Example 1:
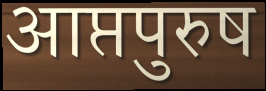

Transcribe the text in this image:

आप्तपुरुष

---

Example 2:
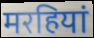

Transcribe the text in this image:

मरहियां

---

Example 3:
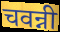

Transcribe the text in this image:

चवन्नी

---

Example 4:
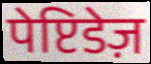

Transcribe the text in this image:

पेप्टिडेज़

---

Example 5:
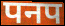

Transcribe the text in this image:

पनप